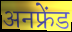
अनफ्रेंड